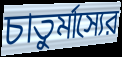
চাতুর্মাস্যের